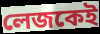
লেজকেই